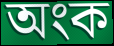
অংক